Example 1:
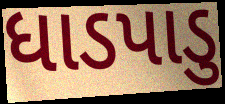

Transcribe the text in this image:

ધાડપાડુ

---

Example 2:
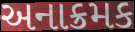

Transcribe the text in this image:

અનાક્રમક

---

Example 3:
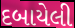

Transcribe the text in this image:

દબાયેલી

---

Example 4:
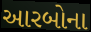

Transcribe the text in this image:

આરબોના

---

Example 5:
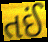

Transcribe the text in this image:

તઈં